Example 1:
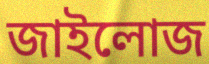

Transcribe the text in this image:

জাইলোজ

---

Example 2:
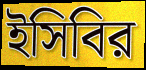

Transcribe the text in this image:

ইসিবির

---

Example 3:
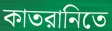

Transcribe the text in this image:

কাতরানিতে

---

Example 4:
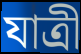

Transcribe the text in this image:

যাত্রী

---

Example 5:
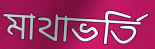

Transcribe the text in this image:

মাথাভর্তি